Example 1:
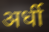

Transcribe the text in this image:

अर्धी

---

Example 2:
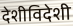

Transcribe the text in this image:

देशीविदेशी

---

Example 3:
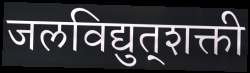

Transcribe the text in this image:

जलविद्युत्‌शक्ती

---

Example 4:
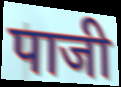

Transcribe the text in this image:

पाजी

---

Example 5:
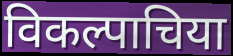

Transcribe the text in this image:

विकल्पाचिया